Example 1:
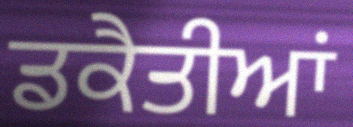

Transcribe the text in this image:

ਡਕੈਤੀਆਂ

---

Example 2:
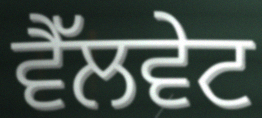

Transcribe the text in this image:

ਵੈੱਲਵੇਟ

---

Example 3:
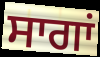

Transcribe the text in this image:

ਸਾਗਾਂ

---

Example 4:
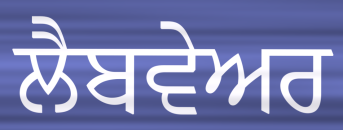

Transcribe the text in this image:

ਲੈਬਵੇਅਰ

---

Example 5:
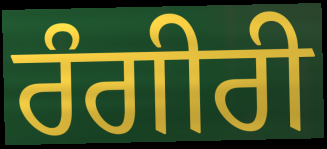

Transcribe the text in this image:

ਰੰਗੀਰੀ